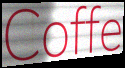
Coffe